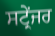
ਸਟ੍ਰੇਂਜਰ